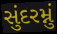
સુંદરમ્નું